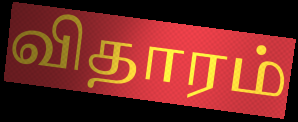
விதாரம்